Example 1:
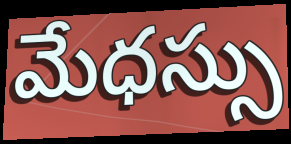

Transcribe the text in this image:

మేధస్సు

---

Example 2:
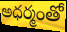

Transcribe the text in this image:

అధర్మంతో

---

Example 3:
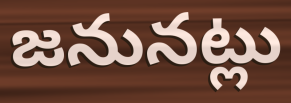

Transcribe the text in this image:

జనునట్లు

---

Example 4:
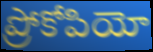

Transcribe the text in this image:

ప్రోకోపియో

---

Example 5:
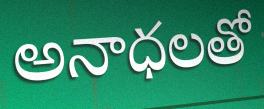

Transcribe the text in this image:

అనాధలతో